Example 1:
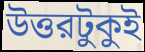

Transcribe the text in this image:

উত্তরটুকুই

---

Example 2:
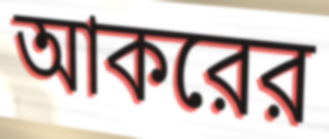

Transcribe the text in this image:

আকরের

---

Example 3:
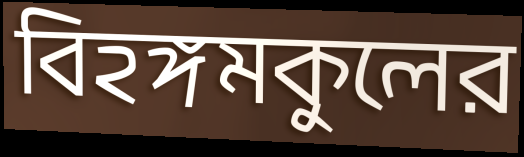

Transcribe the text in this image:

বিহঙ্গমকুলের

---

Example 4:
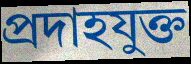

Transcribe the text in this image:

প্রদাহযুক্ত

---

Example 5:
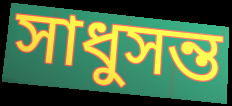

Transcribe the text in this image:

সাধুসন্ত